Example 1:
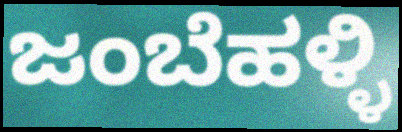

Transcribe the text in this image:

ಜಂಬೆಹಳ್ಳಿ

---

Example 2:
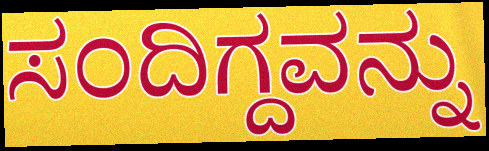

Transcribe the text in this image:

ಸಂದಿಗ್ದವನ್ನು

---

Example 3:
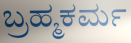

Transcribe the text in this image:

ಬ್ರಹ್ಮಕರ್ಮ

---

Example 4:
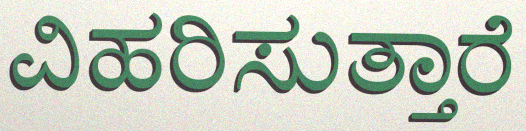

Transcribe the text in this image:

ವಿಹರಿಸುತ್ತಾರೆ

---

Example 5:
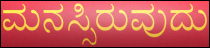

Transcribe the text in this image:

ಮನಸ್ಸಿರುವುದು